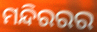
ମନ୍ଦିରରର